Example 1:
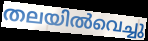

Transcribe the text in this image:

തലയിൽവെച്ചു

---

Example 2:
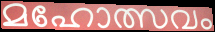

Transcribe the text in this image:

മഹോത്സവം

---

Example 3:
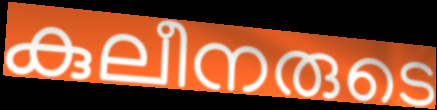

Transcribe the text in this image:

കുലീനരുടെ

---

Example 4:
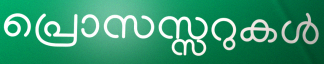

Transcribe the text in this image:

പ്രൊസസ്സറുകൾ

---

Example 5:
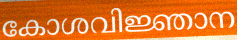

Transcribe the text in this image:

കോശവിജ്ഞാന